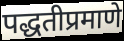
पद्धतीप्रमाणे